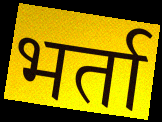
भर्ता